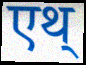
एथ्